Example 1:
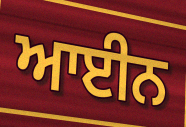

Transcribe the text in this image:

ਆਈਨ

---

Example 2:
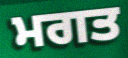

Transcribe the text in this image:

ਮਗਤ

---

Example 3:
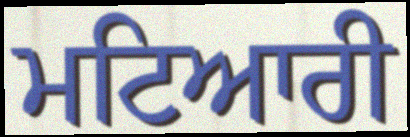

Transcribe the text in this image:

ਮਟਿਆਰੀ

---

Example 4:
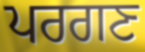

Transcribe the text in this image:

ਪਰਗਣ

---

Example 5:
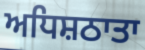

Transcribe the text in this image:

ਅਧਿਸ਼ਠਾਤਾ